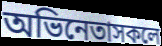
অভিনেতাসকলে